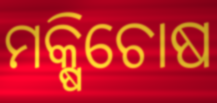
ମକ୍ଷିଚୋଷ